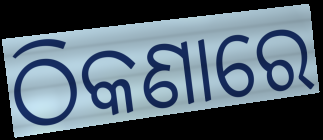
ଠିକଣାରେ